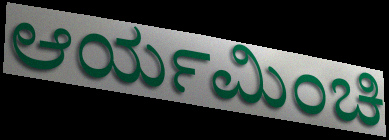
ಆರ್ಯಮಿಂಚಿ